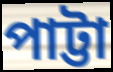
পাট্টা